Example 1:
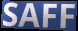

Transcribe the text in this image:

SAFF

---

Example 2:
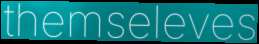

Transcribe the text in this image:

themseleves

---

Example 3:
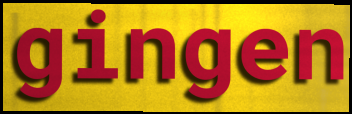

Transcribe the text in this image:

gingen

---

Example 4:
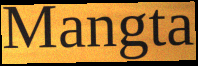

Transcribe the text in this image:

Mangta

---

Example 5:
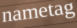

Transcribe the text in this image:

nametag